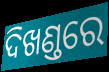
ଦିଖଣ୍ଡରେ